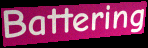
Battering